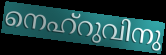
നെഹ്റുവിനു